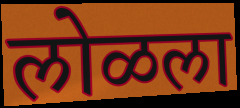
लोळला